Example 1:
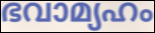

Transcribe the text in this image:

ഭവാമ്യഹം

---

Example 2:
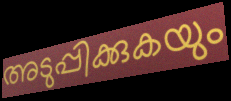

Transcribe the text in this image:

അടുപ്പിക്കുകയും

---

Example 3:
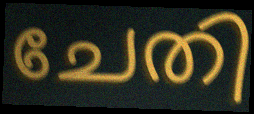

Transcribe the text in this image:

ചേതി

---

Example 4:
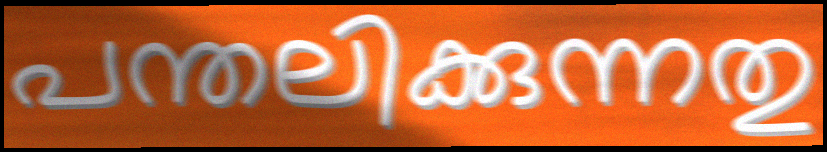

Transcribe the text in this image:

പന്തലിക്കുന്നതു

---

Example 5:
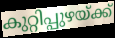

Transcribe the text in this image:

കുറ്റിപ്പുഴയ്ക്ക്